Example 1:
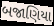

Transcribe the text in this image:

બજાણિયા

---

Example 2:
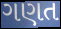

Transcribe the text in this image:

ગણત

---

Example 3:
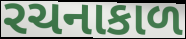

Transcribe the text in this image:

રચનાકાળ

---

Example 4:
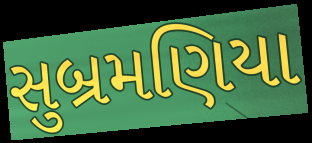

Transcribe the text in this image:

સુબ્રમણિયા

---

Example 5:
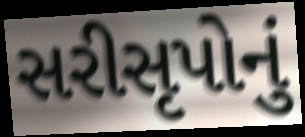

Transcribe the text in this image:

સરીસૃપોનું